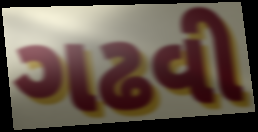
ગઢવી